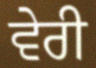
ਵੇਰੀ